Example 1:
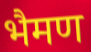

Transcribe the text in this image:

भैमण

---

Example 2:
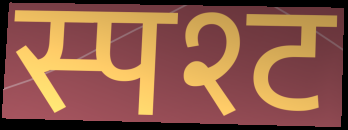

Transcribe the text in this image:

स्पश्ट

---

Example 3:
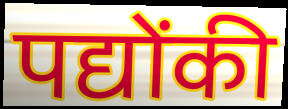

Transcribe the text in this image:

पद्योंकी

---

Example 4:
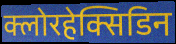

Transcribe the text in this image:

क्लोरहेक्सिडिन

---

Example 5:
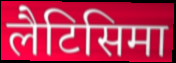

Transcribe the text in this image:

लैटिसिमा